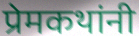
प्रेमकथांनी